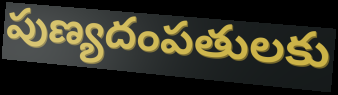
పుణ్యదంపతులకు